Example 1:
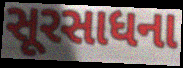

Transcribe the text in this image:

સૂરસાધના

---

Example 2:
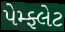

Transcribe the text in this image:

પેમ્ફ્લેટ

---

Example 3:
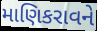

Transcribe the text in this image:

માણિકરાવને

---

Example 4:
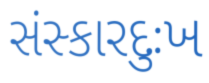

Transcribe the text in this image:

સંસ્કારદુઃખ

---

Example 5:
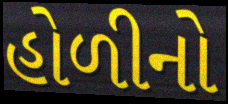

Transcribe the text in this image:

હોળીનો